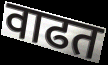
वाढत